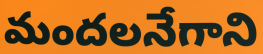
మందలనేగాని